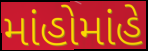
માંહોમાંહે